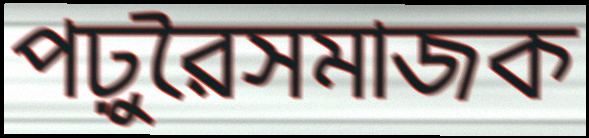
পঢ়ুৱৈসমাজক